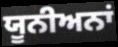
ਯੂਨੀਅਨਾਂ